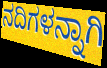
ನದಿಗಳನ್ನಾಗಿ